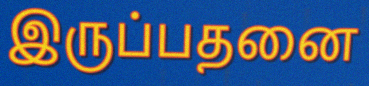
இருப்பதனை